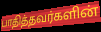
பாதித்தவர்களின்